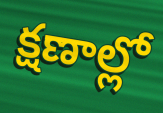
క్షణాల్లో